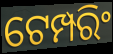
ଟେମ୍ପରିଂ